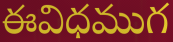
ఈవిధముగ